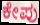
ಕೇಪು